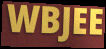
WBJEE